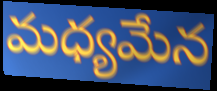
మధ్యమేన